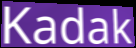
Kadak